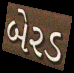
બેરડ